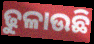
ଢୁଳାଉଛି